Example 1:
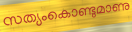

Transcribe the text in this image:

സത്യംകൊണ്ടുമാണു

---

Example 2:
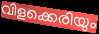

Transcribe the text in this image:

വിളക്കെരിയും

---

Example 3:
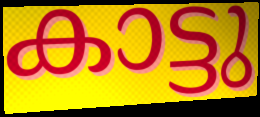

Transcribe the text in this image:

കാട്ടു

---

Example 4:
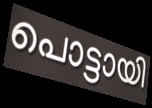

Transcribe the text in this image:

പൊട്ടായി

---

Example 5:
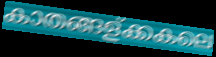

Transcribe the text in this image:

കാതങ്ങള്ക്കകലെ